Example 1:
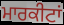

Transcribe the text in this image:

ਮਾਰਕੀਟਾਂ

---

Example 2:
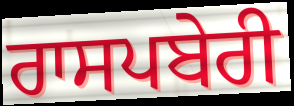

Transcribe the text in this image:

ਰਾਸਪਬੇਰੀ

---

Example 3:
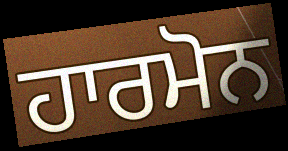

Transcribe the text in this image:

ਹਾਰਮੋਨ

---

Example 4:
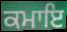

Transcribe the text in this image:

ਕਮਾਇ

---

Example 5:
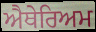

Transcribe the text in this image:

ਐਥੇਰਿਅਮ